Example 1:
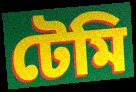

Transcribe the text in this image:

টেমি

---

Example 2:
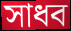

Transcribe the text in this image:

সাধব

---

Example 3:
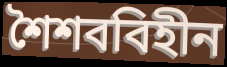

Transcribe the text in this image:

শৈশববিহীন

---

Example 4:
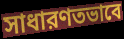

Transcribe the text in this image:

সাধারণতভাবে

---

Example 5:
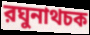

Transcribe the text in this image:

রঘুনাথচক